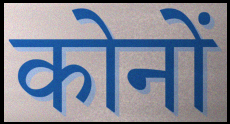
कोनों